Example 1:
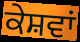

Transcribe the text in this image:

ਕੇਸ਼ਵਾਂ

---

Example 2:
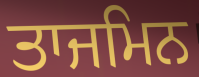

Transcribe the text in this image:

ਤਾਜਮਿਨ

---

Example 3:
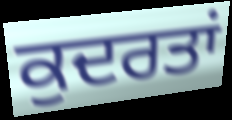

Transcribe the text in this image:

ਕੁਦਰਤਾਂ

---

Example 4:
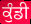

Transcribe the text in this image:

ਕੁੰਡੀ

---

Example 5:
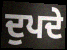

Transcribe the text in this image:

ਦੁਪਦੇ